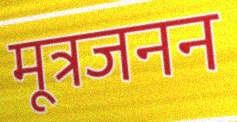
मूत्रजनन